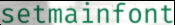
setmainfont